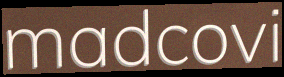
madcovi